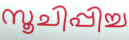
സൂചിപ്പിച്ച